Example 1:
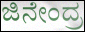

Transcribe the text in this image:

ಜಿನೇಂದ್ರ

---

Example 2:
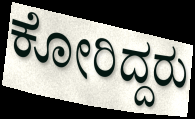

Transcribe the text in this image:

ಕೋರಿದ್ದರು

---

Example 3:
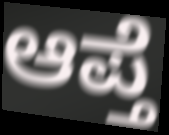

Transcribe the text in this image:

ಆಪ್ತೆ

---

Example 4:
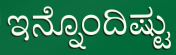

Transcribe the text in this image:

ಇನ್ನೊಂದಿಷ್ಟು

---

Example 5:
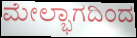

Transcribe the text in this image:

ಮೇಲ್ಭಾಗದಿಂದ